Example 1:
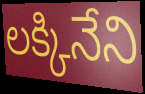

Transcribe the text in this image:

లక్కినేని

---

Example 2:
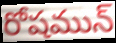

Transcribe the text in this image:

రోషమున్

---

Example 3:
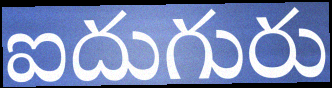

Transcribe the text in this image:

ఐదుగురు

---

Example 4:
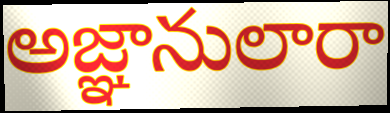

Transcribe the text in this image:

అజ్ఞానులారా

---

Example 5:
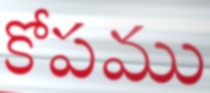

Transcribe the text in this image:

కోపము